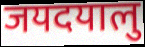
जयदयालु